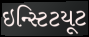
ઇન્સ્ટિટયૂટ